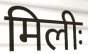
मिलीः